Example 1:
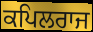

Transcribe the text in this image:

ਕਪਿਲਰਾਜ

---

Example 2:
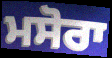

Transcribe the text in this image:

ਮਸੋਰਾ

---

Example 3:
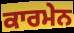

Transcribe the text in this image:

ਕਾਰਮੇਨ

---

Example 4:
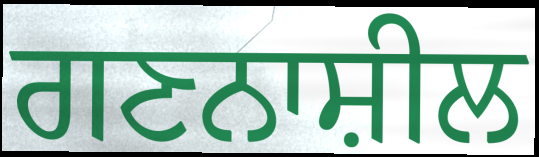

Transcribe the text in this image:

ਗਣਨਾਸ਼ੀਲ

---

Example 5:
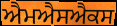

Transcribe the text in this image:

ਐਮਐਸਐਕਸ